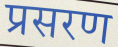
प्रसरण